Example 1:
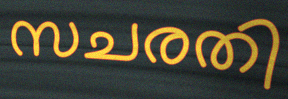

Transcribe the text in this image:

സചരതി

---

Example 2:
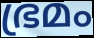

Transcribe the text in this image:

ഭ്രമം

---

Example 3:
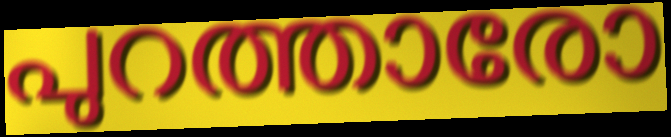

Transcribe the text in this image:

പുറത്താരോ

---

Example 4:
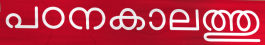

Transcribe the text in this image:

പഠനകാലത്തു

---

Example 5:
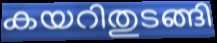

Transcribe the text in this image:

കയറിതുടങ്ങി